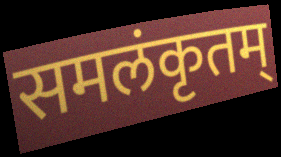
समलंकृतम्